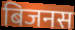
बिजनस